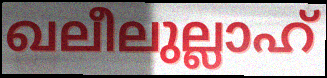
ഖലീലുല്ലാഹ്